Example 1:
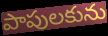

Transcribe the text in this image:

పాపులకును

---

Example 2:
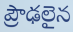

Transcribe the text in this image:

ప్రౌఢలైన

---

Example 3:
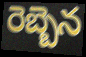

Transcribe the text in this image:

రెబ్బెన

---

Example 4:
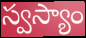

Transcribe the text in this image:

స్వస్యాం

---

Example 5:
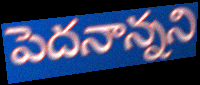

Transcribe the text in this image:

పెదనాన్నని